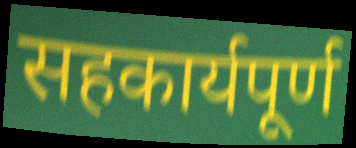
सहकार्यपूर्ण